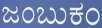
ಜಂಬುಕಂ